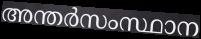
അന്തർസംസ്ഥാന